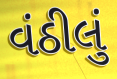
વંઠીલું